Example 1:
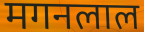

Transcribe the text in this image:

मगनलाल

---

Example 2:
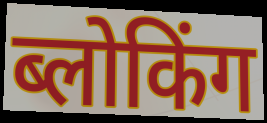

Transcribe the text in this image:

ब्लोकिंग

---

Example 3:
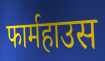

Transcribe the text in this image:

फार्महाउस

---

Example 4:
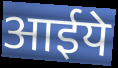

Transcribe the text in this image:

आईये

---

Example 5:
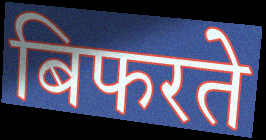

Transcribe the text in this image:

बिफरते